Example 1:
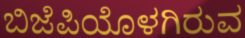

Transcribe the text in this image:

ಬಿಜೆಪಿಯೊಳಗಿರುವ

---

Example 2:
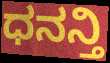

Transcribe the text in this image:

ಧನನ್ತಿ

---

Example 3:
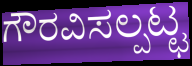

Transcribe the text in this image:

ಗೌರವಿಸಲ್ಪಟ್ಟ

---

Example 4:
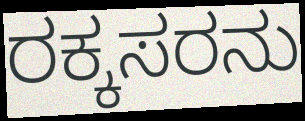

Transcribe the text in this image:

ರಕ್ಕಸರನು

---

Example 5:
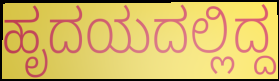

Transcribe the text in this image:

ಹೃದಯದಲ್ಲಿದ್ದ